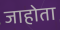
जाहोता